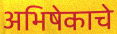
अभिषेकाचे